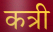
कत्री